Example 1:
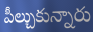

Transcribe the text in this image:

పీల్చుకున్నారు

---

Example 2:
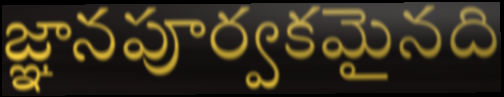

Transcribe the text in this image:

జ్ఞానపూర్వకమైనది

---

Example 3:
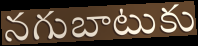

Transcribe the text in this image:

నగుబాటుకు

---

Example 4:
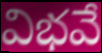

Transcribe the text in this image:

విభవే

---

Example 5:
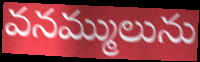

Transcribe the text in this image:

వనమ్ములును